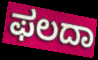
ಫಲದಾ